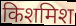
किशमिश